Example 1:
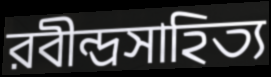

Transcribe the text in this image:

রবীন্দ্রসাহিত্য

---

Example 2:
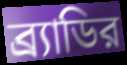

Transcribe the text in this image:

ব্র্যাডির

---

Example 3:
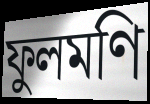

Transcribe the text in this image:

ফুলমণি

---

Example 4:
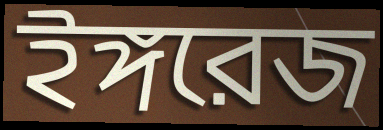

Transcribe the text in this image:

ইঙ্গরেজ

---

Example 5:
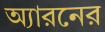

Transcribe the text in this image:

অ্যারনের